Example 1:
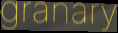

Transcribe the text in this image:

granary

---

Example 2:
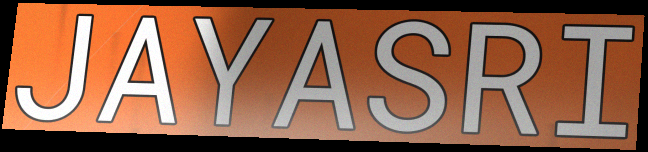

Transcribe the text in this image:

JAYASRI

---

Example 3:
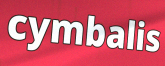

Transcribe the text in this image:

cymbalis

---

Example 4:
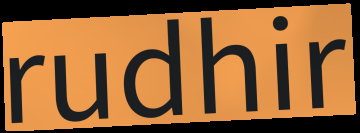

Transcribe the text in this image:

rudhir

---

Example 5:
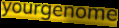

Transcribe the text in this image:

yourgenome